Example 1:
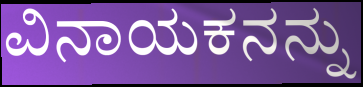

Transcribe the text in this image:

ವಿನಾಯಕನನ್ನು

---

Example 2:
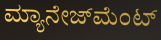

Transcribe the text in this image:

ಮ್ಯಾನೇಜ್‍ಮೆಂಟ್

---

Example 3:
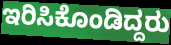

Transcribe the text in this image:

ಇರಿಸಿಕೊಂಡಿದ್ದರು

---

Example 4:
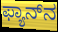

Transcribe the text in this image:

ಫ್ಯಾನ್‌ನ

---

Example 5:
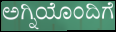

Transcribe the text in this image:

ಅಗ್ನಿಯೊಂದಿಗೆ